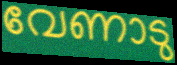
വേണാടു